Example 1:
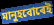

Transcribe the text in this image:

মানুহবোৰেই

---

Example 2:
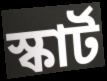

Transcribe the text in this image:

স্কাৰ্ট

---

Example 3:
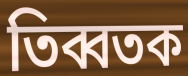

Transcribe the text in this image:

তিব্বতক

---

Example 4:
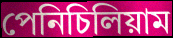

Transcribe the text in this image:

পেনিচিলিয়াম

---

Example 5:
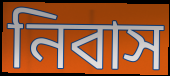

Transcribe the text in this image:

নিবাস